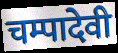
चम्पादेवी